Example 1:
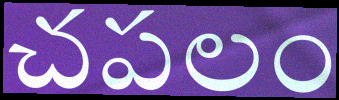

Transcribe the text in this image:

చపలం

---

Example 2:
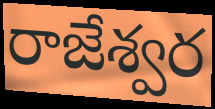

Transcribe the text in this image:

రాజేశ్వర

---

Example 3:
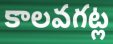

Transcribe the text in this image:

కాలవగట్ల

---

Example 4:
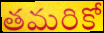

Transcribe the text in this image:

తమరికో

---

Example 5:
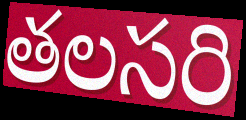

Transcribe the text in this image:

తలసరి